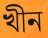
খীন